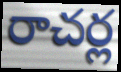
రాచర్ల